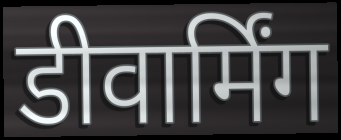
डीवार्मिंग